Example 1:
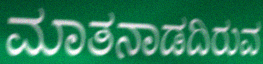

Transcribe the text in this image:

ಮಾತನಾಡದಿರುವ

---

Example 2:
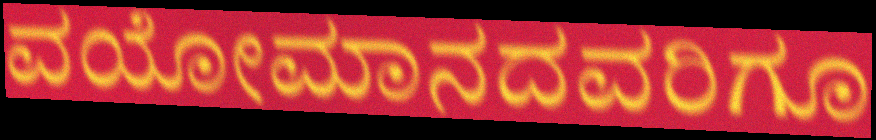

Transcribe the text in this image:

ವಯೋಮಾನದವರಿಗೂ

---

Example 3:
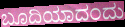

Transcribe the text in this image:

ಬೂದಿಯಾದಂದು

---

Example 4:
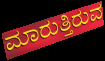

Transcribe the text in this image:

ಮಾರುತ್ತಿರುವ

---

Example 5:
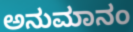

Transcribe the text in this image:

ಅನುಮಾನಂ